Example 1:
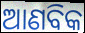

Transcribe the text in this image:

ଆଣବିକ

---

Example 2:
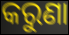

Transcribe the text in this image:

କରୁଣା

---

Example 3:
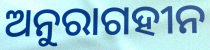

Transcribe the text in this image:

ଅନୁରାଗହୀନ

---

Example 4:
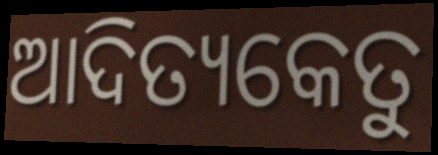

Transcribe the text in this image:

ଆଦିତ୍ୟକେତୁ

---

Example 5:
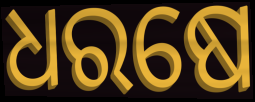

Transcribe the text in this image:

ଧରଷେ